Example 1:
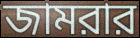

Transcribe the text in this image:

জামরার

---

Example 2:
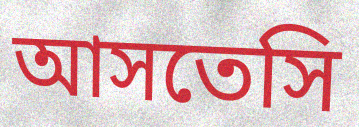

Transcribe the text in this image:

আসতেসি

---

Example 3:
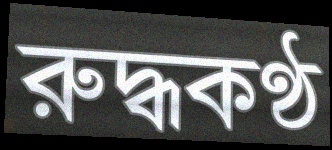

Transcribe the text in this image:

রুদ্ধকণ্ঠ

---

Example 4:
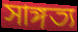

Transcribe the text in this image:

সাঙ্গত্য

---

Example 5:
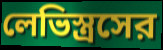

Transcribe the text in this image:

লেভিস্ত্রসের